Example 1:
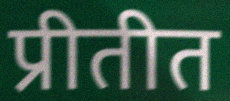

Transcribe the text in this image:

प्रीतीत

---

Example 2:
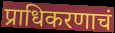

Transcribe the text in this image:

प्राधिकरणाचं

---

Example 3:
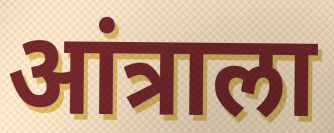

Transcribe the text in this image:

आंत्राला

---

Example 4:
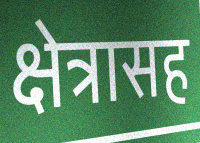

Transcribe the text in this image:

क्षेत्रासह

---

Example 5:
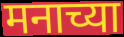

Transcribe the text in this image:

मनाच्या